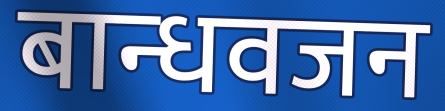
बान्धवजन